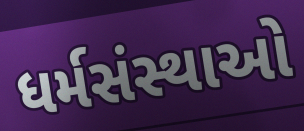
ધર્મસંસ્થાઓ